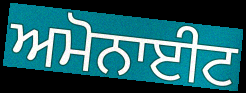
ਅਮੋਨਾਈਟ